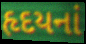
હૃદયનાં